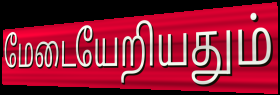
மேடையேறியதும்